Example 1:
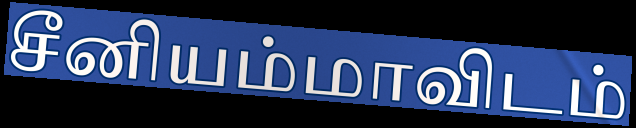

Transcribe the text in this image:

சீனியம்மாவிடம்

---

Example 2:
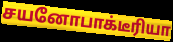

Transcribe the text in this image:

சயனோபாக்டீரியா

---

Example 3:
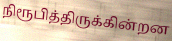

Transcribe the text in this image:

நிரூபித்திருக்கின்றன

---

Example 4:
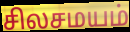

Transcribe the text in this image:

சிலசமயம்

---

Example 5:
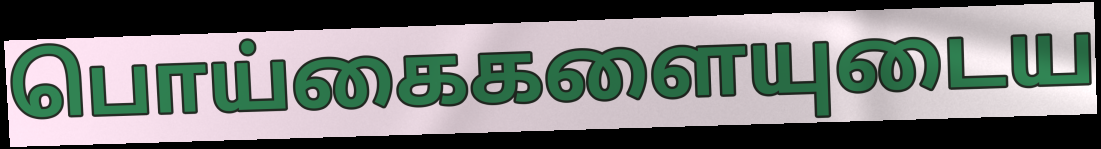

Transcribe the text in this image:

பொய்கைகளையுடைய